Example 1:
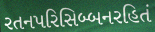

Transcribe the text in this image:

રતનપરિસિબ્બનરહિતં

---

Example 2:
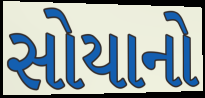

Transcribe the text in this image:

સોયાનો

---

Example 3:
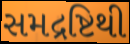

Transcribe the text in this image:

સમદ્રષ્ટિથી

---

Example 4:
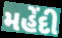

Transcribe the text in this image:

મહેંદી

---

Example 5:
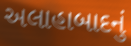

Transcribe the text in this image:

અલાહાબાદનું